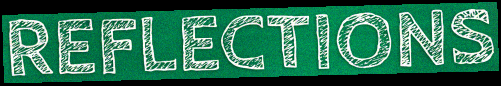
REFLECTIONS